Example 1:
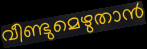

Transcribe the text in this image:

വീണ്ടുമെഴുതാൻ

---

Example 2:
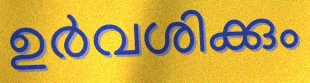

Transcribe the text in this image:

ഉർവശിക്കും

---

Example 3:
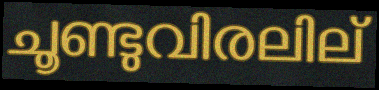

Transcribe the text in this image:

ചൂണ്ടുവിരലില്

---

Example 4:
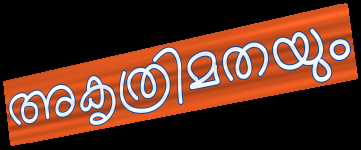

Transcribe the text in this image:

അകൃത്രിമതയും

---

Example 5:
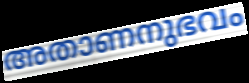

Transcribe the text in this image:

അതാണനുഭവം